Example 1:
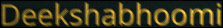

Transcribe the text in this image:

Deekshabhoomi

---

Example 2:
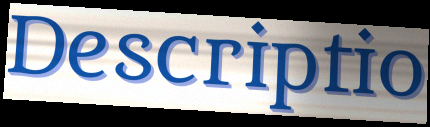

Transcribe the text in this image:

Descriptio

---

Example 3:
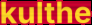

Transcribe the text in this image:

kulthe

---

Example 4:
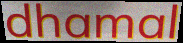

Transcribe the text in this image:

dhamal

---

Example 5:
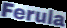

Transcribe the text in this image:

Ferula